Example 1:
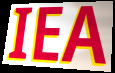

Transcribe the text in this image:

IEA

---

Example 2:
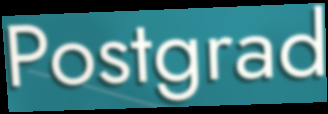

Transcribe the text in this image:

Postgrad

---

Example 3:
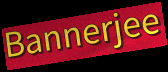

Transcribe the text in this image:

Bannerjee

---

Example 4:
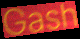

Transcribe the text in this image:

Gash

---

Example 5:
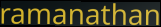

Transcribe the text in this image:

ramanathan